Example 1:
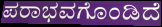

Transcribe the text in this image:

ಪರಾಭವಗೊಂಡಿದೆ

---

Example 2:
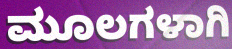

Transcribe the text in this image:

ಮೂಲಗಳಾಗಿ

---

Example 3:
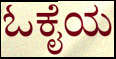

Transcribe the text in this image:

ಓಕೈಯ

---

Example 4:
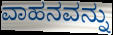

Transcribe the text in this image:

ವಾಹನವನ್ನು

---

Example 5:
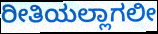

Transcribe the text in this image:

ರೀತಿಯಲ್ಲಾಗಲೀ